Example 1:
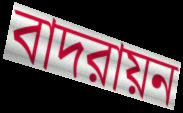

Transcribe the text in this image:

বাদরায়ন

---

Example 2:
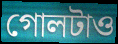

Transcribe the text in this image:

গোলটাও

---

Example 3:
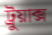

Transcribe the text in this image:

ট্রুয়াক্স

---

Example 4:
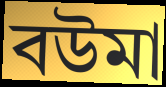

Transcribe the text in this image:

বউমা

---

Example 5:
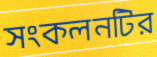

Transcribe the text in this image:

সংকলনটির